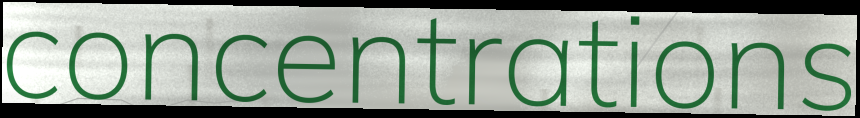
concentrations